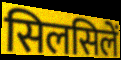
सिलसिलें